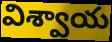
విశ్వాయ